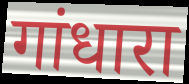
गांधारा